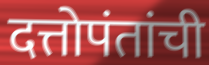
दत्तोपंतांची